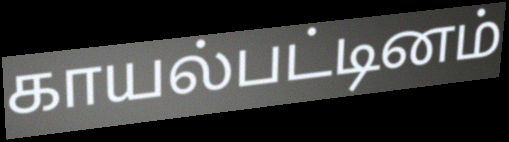
காயல்பட்டினம்